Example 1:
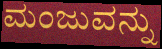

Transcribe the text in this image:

ಮಂಜುವನ್ನು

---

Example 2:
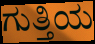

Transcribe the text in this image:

ಗುತ್ತಿಯ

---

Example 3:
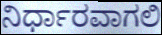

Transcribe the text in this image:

ನಿರ್ಧಾರವಾಗಲಿ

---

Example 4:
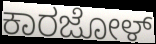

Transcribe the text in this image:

ಕಾರಜೋಳ್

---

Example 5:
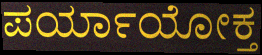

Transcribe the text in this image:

ಪರ್ಯಾಯೋಕ್ತ